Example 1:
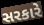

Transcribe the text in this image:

સરકારે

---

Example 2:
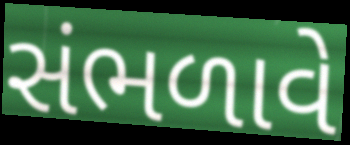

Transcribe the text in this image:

સંભળાવે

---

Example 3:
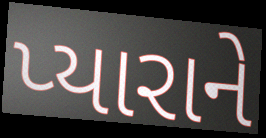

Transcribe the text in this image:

પ્યારાને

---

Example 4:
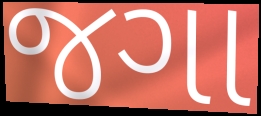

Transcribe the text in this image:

જગા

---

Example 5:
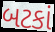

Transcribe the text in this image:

બટકાં